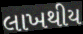
લાખથીય